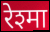
रेश्मा